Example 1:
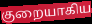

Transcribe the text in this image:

குறையாகிய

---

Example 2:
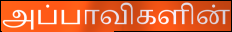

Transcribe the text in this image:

அப்பாவிகளின்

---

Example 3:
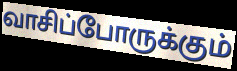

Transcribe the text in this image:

வாசிப்போருக்கும்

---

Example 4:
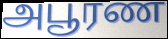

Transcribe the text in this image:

அபூரண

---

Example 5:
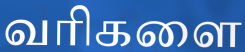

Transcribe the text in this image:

வரிகளை